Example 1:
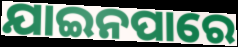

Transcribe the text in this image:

ଯାଇନପାରେ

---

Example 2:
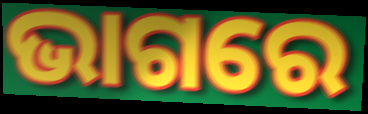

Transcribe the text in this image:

ଭାଗରେ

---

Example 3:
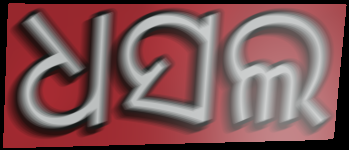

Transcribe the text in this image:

ଧସଲ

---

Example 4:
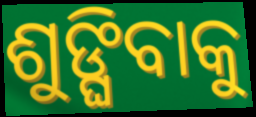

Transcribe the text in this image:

ଶୁଙ୍ଘିବାକୁ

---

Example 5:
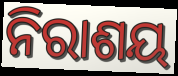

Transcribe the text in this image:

ନିରାଶୟ